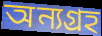
অন্যগ্রহ